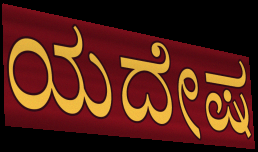
ಯದೇಷ